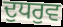
ਦੁਧਰੁਵ